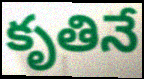
కృతినే